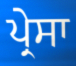
ਪ੍ਰੇਸਾ